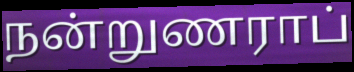
நன்றுணராப்